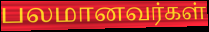
பலமானவர்கள்